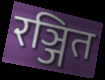
रञ्जित